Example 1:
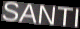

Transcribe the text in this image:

SANTI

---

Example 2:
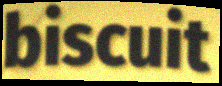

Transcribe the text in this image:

biscuit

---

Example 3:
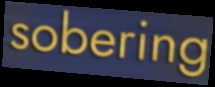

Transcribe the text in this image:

sobering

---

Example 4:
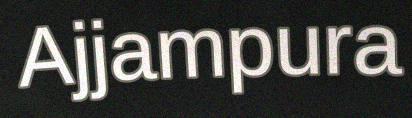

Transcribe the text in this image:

Ajjampura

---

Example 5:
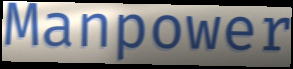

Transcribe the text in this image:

Manpower